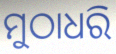
ମୁଠାଧରି